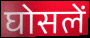
घोसलें